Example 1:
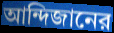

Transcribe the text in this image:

আন্দিজানের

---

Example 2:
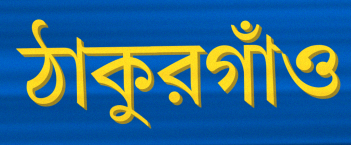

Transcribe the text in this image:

ঠাকুরগাঁও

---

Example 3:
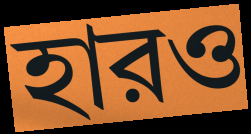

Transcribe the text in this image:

হারও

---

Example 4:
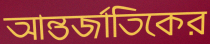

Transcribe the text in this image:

আন্তর্জাতিকের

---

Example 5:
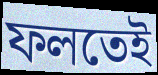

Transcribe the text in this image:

ফলতেই